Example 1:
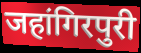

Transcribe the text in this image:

जहांगिरपुरी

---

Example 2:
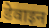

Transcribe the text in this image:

डेवाइन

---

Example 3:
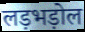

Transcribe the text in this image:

लड़भड़ोल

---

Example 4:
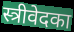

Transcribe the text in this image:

स्त्रीवेदका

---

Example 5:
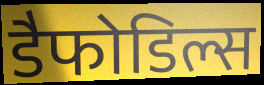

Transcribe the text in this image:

डैफोडिल्स